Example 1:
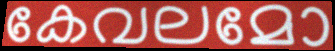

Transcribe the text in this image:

കേവലമോ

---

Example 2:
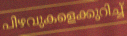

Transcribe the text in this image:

പിഴവുകളെക്കുറിച്ച്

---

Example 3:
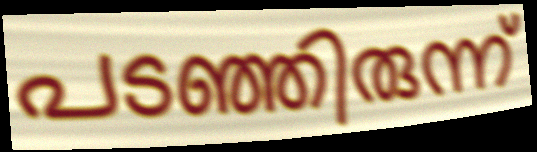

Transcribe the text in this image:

പടഞ്ഞിരുന്ന്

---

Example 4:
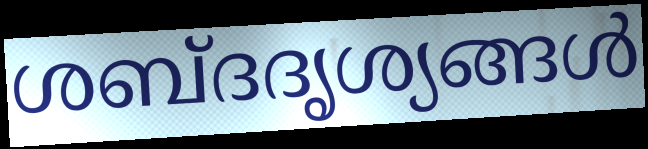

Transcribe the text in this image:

ശബ്ദദൃശ്യങ്ങൾ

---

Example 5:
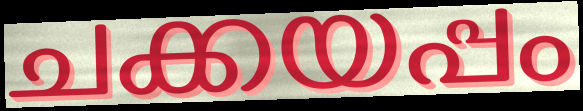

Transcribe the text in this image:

ചക്കയപ്പം